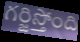
గర్జిస్తోంది